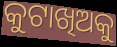
କୁଟାଖିଅକୁ